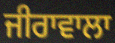
ਜੀਰਾਵਾਲਾ